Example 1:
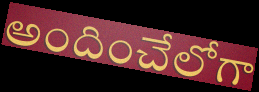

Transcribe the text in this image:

అందించేలోగా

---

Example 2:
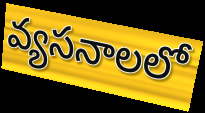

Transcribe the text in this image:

వ్యసనాలలో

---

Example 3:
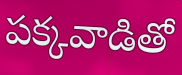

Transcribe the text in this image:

పక్కవాడితో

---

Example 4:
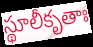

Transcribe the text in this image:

స్థూలీకృతాః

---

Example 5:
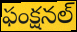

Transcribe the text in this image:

ఫంక్షనల్